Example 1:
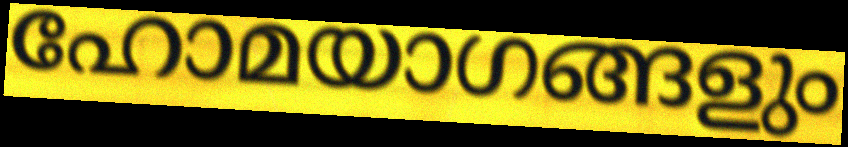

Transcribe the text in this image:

ഹോമയാഗങ്ങളും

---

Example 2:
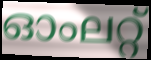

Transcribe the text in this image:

ഓംലറ്റ്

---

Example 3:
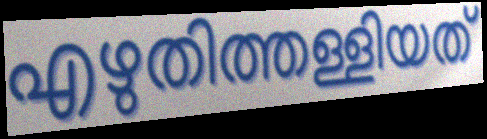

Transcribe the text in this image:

എഴുതിത്തള്ളിയത്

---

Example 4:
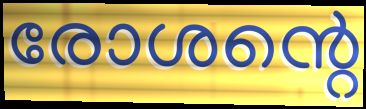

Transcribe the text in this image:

രോശന്റെ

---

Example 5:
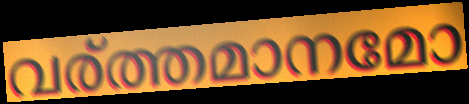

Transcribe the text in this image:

വര്ത്തമാനമോ